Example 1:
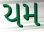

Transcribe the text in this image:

યમ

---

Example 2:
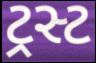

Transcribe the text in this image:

ટ્રસ્ટ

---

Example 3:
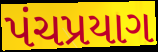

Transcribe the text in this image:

પંચપ્રયાગ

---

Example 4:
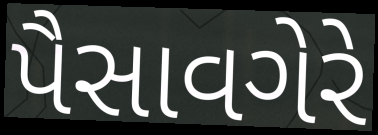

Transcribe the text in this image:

પૈસાવગેરે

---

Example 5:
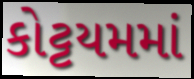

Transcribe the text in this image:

કોટ્ટયમમાં